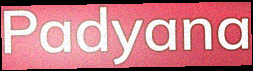
Padyana